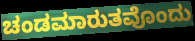
ಚಂಡಮಾರುತವೊಂದು